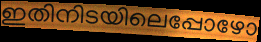
ഇതിനിടയിലെപ്പോഴോ